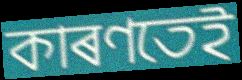
কাৰণতেই